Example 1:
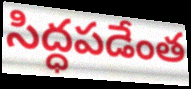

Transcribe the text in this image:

సిద్ధపడేంత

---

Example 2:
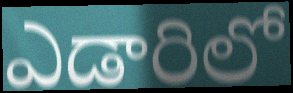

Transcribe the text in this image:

ఎడారిలో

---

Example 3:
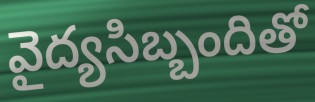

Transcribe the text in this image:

వైద్యసిబ్బందితో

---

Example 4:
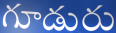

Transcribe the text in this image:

గూడురు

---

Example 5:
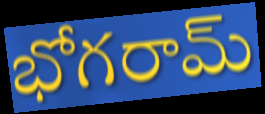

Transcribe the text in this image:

భోగరామ్